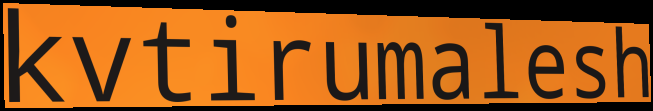
kvtirumalesh